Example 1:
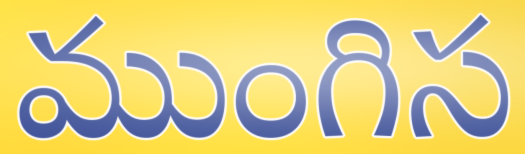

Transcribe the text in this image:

ముంగిస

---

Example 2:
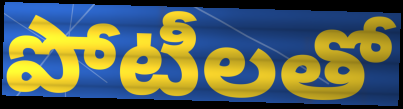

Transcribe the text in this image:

పోటీలతో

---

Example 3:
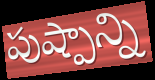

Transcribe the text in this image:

పుష్పాన్ని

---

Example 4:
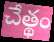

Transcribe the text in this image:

చేత్థం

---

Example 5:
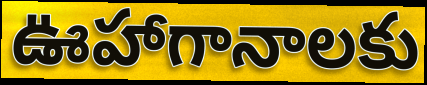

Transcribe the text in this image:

ఊహాగానాలకు